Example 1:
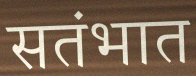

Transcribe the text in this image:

सतंभात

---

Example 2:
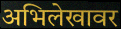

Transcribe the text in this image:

अभिलेखावर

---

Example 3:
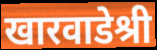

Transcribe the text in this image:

खारवाडेश्री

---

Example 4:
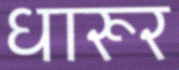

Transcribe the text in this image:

धारूर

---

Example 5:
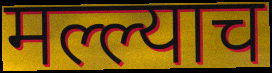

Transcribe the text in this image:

मल्ल्याच